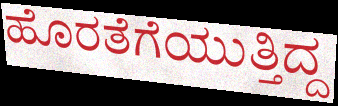
ಹೊರತೆಗೆಯುತ್ತಿದ್ದ